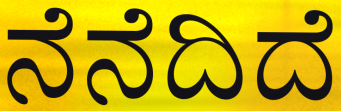
ನೆನೆದಿದೆ